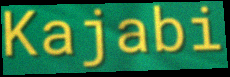
Kajabi